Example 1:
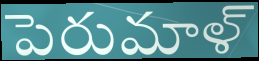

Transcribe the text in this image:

పెరుమాళ్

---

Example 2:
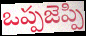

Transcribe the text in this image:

ఒప్పజెప్పి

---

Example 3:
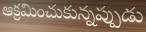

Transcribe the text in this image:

ఆక్రమించుకున్నప్పుడు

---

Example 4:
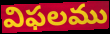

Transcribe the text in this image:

విఫలము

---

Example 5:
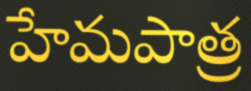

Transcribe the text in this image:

హేమపాత్ర